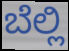
ಬೆಲ್ಲಿ